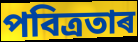
পবিত্ৰতাৰ